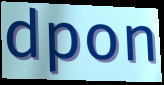
dpon